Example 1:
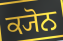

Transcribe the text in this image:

ਕ੍ਯੋਨ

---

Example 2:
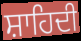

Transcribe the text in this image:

ਸ਼ਾਹਿਦੀ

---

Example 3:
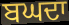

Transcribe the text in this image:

ਬਘਦਾ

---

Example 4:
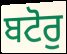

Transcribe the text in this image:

ਬਟੋਰੁ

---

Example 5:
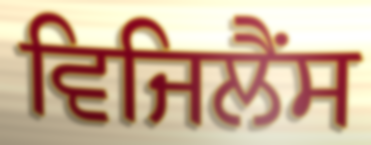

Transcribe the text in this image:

ਵਿਜਿਲੈਂਸ